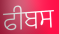
ਫੀਬਸ